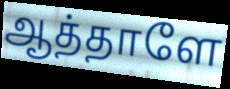
ஆத்தாளே